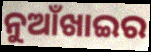
ନୁଆଁଖାଇର